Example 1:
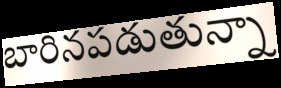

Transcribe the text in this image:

బారినపడుతున్నా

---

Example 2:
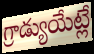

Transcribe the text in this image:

గ్రాడ్యుయేట్లే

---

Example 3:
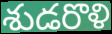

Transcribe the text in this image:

శుడరొళి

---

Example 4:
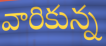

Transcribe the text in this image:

వారికున్న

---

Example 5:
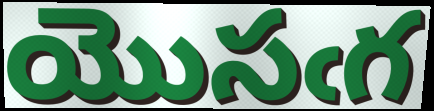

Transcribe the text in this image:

యొసఁగ